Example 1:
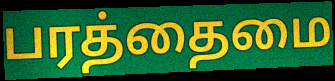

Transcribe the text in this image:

பரத்தைமை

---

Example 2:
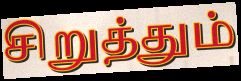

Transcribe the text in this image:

சிறுத்தும்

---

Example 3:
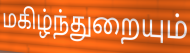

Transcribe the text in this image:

மகிழ்ந்துறையும்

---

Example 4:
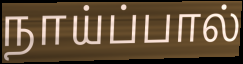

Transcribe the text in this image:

நாய்ப்பால்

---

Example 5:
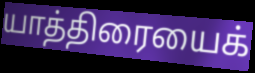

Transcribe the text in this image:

யாத்திரையைக்